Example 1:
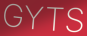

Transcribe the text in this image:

GYTS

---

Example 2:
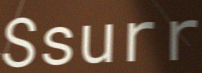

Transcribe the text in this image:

Ssurr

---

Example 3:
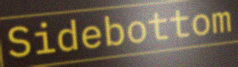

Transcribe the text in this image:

Sidebottom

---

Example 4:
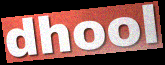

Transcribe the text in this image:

dhool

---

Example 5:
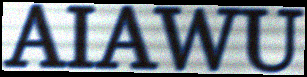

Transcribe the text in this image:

AIAWU